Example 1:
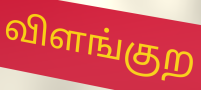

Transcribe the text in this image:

விளங்குற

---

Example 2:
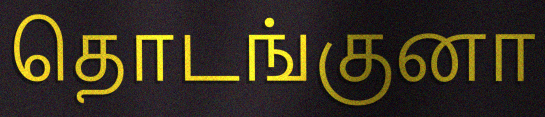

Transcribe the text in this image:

தொடங்குனா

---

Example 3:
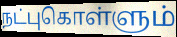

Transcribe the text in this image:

நட்புகொள்ளும்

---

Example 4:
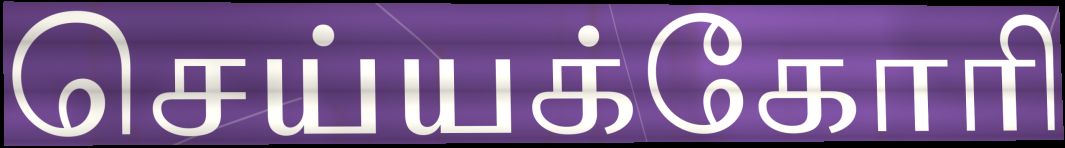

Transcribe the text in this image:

செய்யக்கோரி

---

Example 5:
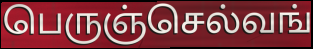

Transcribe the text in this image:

பெருஞ்செல்வங்